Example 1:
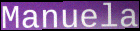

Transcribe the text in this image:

Manuela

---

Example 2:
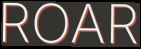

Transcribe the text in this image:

ROAR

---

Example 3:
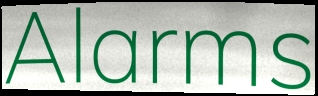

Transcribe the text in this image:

Alarms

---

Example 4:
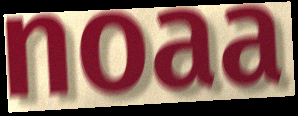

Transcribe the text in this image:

noaa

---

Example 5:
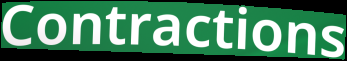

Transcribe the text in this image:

Contractions